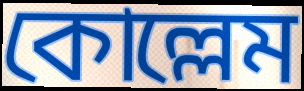
কোল্লেম